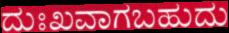
ದುಃಖವಾಗಬಹುದು